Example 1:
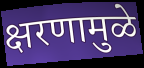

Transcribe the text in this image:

क्षरणामुळे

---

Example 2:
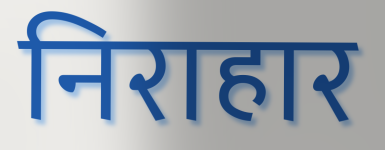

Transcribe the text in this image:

निराहार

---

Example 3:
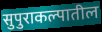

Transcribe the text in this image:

सुपुराकल्पातील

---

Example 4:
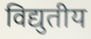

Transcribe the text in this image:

विद्युतीय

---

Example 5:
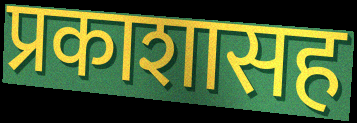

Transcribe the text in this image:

प्रकाशासह